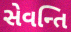
સેવન્તિ